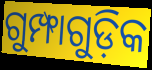
ଗୁମ୍ଫାଗୁଡ଼ିକ